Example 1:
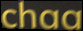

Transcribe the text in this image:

chaa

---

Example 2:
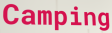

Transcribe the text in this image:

Camping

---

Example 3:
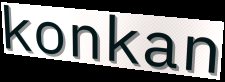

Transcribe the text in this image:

konkan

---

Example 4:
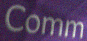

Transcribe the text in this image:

Comm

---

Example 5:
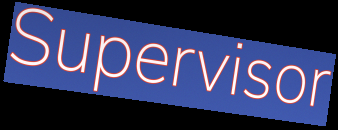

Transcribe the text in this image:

Supervisor